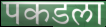
पकडला